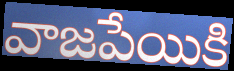
వాజపేయికి